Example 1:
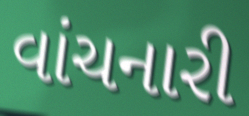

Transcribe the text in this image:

વાંચનારી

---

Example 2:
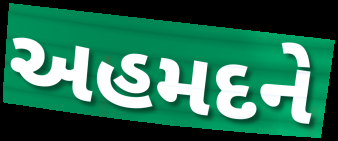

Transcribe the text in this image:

અહમદને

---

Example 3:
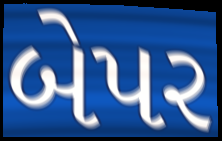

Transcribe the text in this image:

બેપર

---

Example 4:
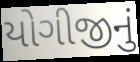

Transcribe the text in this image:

યોગીજીનું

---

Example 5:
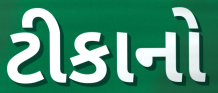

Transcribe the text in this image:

ટીકાનો